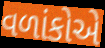
વળાંકોએ